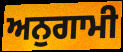
ਅਨੁਗਾਮੀ